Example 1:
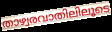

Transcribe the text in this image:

താഴ്വരവാതിലിലൂടെ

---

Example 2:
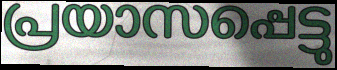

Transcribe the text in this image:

പ്രയാസപ്പെട്ടു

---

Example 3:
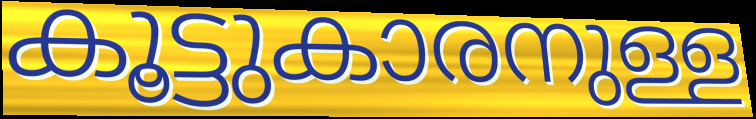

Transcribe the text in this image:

കൂട്ടുകാരനുള്ള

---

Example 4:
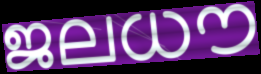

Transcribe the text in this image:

ജലധൗ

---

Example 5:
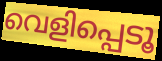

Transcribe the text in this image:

വെളിപ്പെടൂ